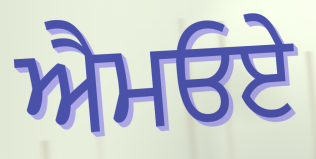
ਐਮਓਏ